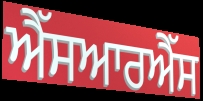
ਐੱਸਆਰਐੱਸ